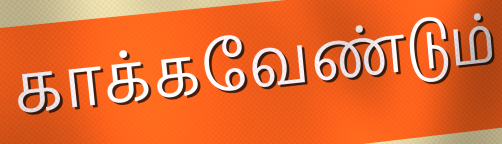
காக்கவேண்டும்